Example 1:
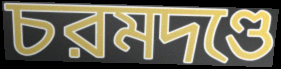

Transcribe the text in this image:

চরমদণ্ডে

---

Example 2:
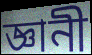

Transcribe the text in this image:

জ্ঞানী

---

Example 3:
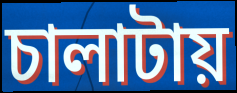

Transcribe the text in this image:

চালাটায়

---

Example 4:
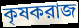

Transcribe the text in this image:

কৃষকরাজ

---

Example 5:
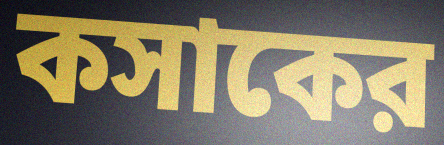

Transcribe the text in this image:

কসাকের